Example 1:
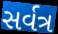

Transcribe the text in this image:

સર્વત્ર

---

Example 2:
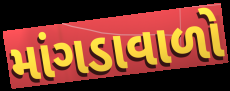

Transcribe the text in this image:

માંગડાવાળો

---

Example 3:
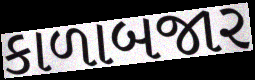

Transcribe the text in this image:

કાળાબજાર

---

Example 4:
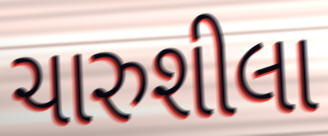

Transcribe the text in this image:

ચારુશીલા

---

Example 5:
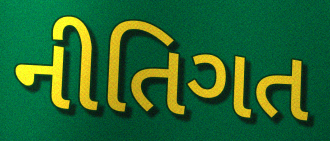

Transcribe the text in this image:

નીતિગત